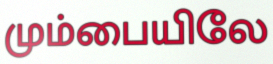
மும்பையிலே